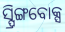
ସ୍ପ୍ରିଙ୍ଗବୋକ୍ସ